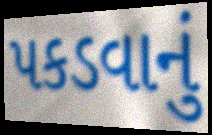
પકડવાનું